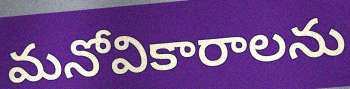
మనోవికారాలను